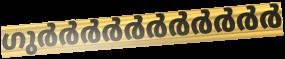
ഗുർർർർർർർർർർർ